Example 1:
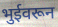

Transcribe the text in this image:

भुईवरून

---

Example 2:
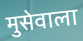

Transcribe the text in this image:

मुसेवाला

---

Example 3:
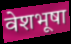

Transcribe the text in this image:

वेशभूषा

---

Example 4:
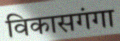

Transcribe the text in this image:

विकासगंगा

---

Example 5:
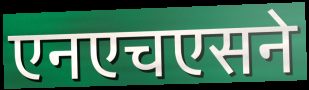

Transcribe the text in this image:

एनएचएसने